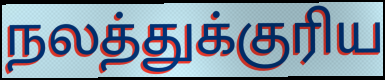
நலத்துக்குரிய